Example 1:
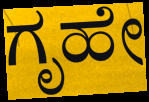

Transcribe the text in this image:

ಗೃಹೇ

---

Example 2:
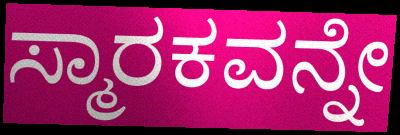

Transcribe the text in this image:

ಸ್ಮಾರಕವನ್ನೇ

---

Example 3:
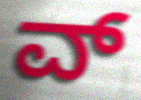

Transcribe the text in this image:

ವ್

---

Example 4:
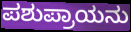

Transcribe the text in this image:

ಪಶುಪ್ರಾಯನು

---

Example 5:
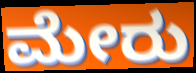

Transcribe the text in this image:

ಮೇರು